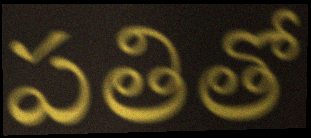
పతితో